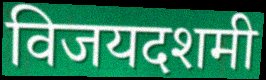
विजयदशमी